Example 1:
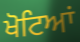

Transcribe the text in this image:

ਖੋਟਿਆਂ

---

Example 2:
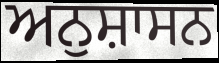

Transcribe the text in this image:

ਅਨੁਸ਼ਾਸਨ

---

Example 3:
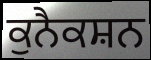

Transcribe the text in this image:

ਕੁਨੈਕਸ਼ਨ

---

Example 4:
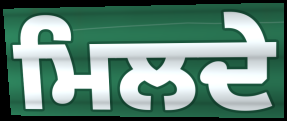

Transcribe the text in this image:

ਮਿਲਦੇ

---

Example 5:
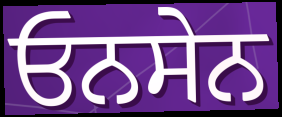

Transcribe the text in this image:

ਓਨਸੇਨ